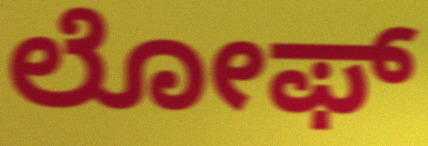
ಲೋಫ್